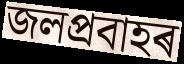
জলপ্ৰবাহৰ